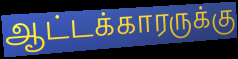
ஆட்டக்காரருக்கு